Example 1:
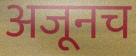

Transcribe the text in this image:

अजूनच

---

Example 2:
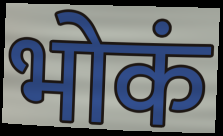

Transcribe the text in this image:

भोकं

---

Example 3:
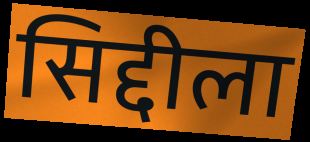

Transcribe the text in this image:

सिद्दीला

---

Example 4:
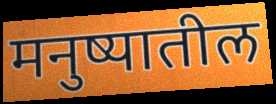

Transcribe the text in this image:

मनुष्यातील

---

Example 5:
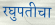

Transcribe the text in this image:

रघुपतीचा